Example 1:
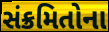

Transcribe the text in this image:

સંક્રમિતોના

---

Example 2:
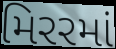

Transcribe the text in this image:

મિરરમાં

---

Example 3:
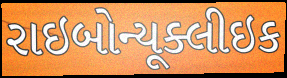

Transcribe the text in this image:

રાઇબોન્યૂક્લીઇક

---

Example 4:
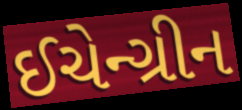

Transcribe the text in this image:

ઈચેન્ગ્રીન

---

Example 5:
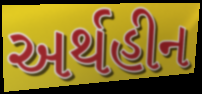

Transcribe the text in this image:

અર્થહીન